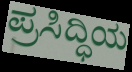
ಪ್ರಸಿದ್ಧಿಯ